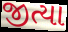
જીત્યા